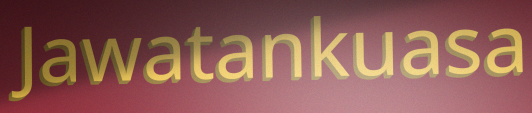
Jawatankuasa